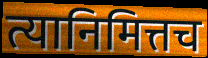
त्यानिमित्तच